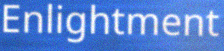
Enlightment